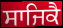
ਸਾਜਿਕੈ